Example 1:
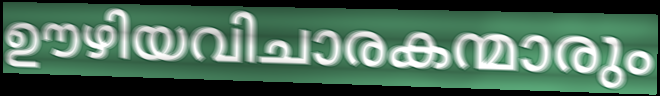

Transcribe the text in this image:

ഊഴിയവിചാരകന്മാരും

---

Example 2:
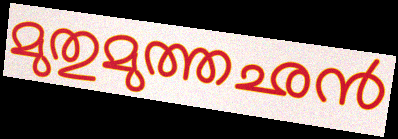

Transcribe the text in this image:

മുതുമുത്തഛൻ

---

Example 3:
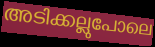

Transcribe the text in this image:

അടിക്കല്ലുപോലെ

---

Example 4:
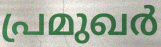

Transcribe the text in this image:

പ്രമുഖർ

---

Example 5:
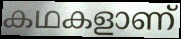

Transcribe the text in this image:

കഥകളാണ്